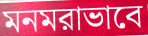
মনমরাভাবে